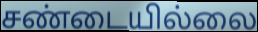
சண்டையில்லை